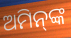
ଅମିନ୍‌ଙ୍କ